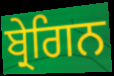
ਬ੍ਰੇਗਿਨ